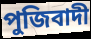
পুজিবাদী